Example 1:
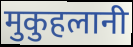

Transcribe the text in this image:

मुकुहलानी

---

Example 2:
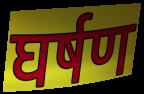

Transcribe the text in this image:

घर्षण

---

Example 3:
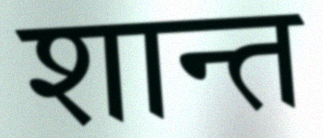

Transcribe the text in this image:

शान्त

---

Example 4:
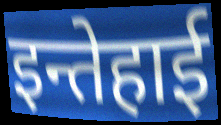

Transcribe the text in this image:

इन्तेहाई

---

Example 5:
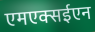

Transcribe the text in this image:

एमएक्सईएन